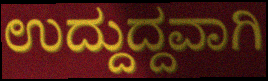
ಉದ್ದುದ್ದವಾಗಿ